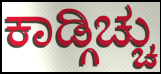
ಕಾಡ್ಗಿಚ್ಚು